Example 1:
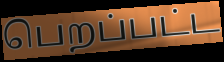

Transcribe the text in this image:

பெறப்பட்ட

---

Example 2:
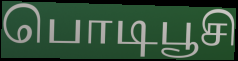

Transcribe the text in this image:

பொடிபூசி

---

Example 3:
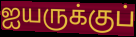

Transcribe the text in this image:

ஐயருக்குப்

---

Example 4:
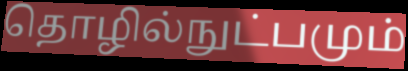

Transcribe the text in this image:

தொழில்நுட்பமும்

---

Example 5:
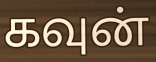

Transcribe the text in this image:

கவுன்